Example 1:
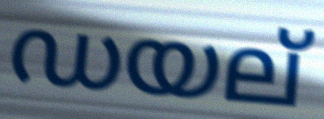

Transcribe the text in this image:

ഡയല്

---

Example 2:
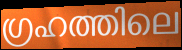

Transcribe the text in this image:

ഗ്രഹത്തിലെ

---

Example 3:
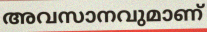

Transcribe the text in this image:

അവസാനവുമാണ്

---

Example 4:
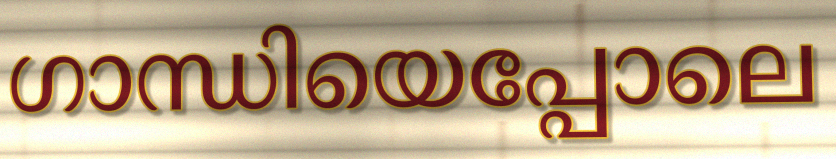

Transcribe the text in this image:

ഗാന്ധിയെപ്പോലെ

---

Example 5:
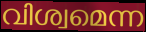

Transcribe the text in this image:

വിശ്വമെന്ന